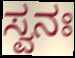
ಸ್ವನಃ